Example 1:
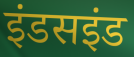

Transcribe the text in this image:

इंडसइंड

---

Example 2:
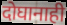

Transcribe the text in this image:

दोघानाही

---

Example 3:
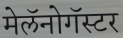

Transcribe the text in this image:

मेलॅनोगॅस्टर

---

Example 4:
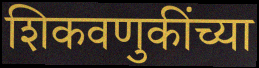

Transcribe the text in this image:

शिकवणुकींच्या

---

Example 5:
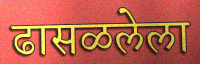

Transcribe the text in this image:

ढासळलेला